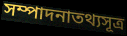
সম্পাদনাতথ্যসূত্র